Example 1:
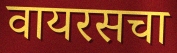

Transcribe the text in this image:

वायरसचा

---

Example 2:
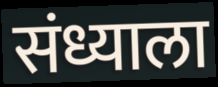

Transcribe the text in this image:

संध्याला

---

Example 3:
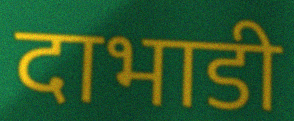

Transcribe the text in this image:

दाभाडी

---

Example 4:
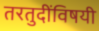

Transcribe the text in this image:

तरतुदींविषयी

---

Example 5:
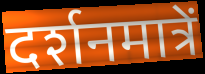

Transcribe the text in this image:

दर्शनमात्रें